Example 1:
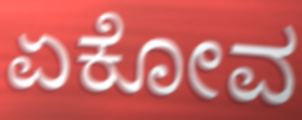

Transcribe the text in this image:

ಏಕೋವ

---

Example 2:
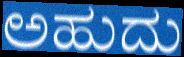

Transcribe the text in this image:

ಅಹುದು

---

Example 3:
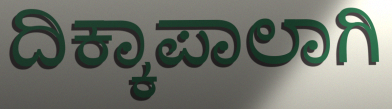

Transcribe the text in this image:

ದಿಕ್ಕಾಪಾಲಾಗಿ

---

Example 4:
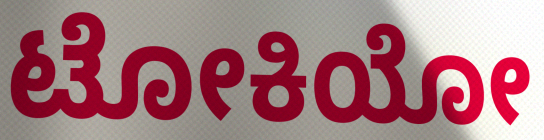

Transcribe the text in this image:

ಟೋಕಿಯೋ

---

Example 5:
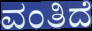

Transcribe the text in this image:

ವಂತಿದೆ